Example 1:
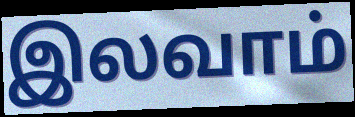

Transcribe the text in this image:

இலவாம்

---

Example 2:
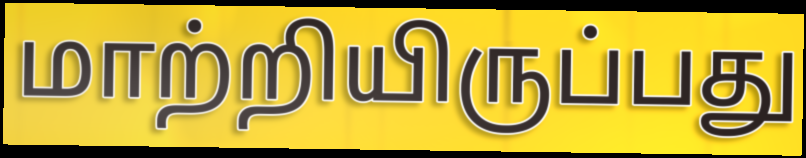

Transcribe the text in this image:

மாற்றியிருப்பது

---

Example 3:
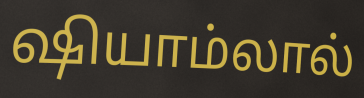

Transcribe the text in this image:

ஷியாம்லால்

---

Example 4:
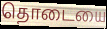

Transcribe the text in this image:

தொடையை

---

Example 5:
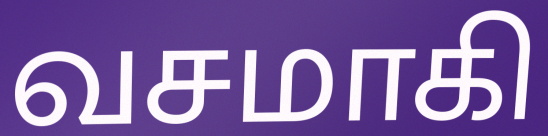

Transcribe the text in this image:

வசமாகி